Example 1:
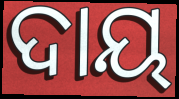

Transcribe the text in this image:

ଦାୟ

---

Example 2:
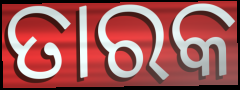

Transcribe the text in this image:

ତାରକ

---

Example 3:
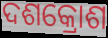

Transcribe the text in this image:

ଦଶକ୍ରୋଶ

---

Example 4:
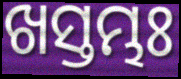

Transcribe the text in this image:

ଖସ୍ତମ୍ଭଃ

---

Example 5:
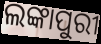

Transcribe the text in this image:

ଲଙ୍କାପୁରୀ